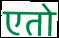
एतो